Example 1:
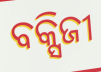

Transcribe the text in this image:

ବକ୍ସିଜୀ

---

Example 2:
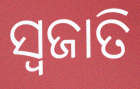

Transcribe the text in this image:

ସ୍ୱଜାତି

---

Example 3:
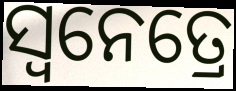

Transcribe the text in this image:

ସ୍ୱନେତ୍ରେ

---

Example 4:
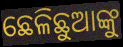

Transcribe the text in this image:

ଛେଳିଛୁଆଙ୍କୁ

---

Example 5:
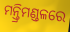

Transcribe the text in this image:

ମନ୍ତ୍ରିମଣ୍ଡଳରେ